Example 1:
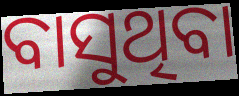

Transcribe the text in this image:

ବାସୁଥିବା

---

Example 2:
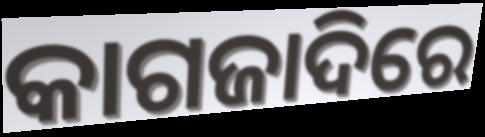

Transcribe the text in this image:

କାଗଜାଦିରେ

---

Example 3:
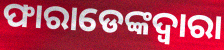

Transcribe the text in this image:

ଫାରାଡେଙ୍କଦ୍ୱାରା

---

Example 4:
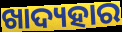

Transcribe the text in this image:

ଖାଦ୍ୟହାର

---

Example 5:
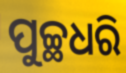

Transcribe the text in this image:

ପୁଚ୍ଛଧରି